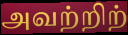
அவற்றிற்